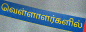
வெள்ளாளர்களில்